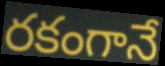
రకంగానే